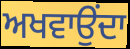
ਅਖਵਾਉਂਦਾ